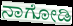
ನಾಗೋಡಿ